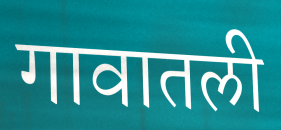
गावातली